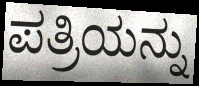
ಪತ್ರಿಯನ್ನು